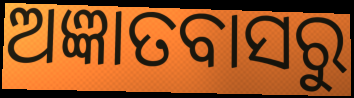
ଅଜ୍ଞାତବାସରୁ